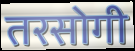
तरसोगी